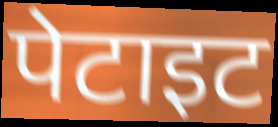
पेटाइट